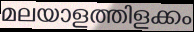
മലയാളത്തിളക്കം